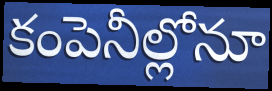
కంపెనీల్లోనూ